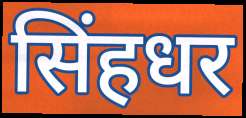
सिंहधर